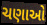
ચણાઓ